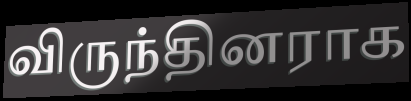
விருந்தினராக